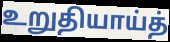
உறுதியாய்த்